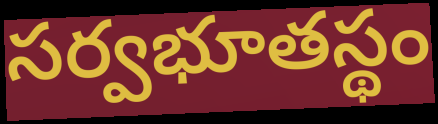
సర్వభూతస్థం